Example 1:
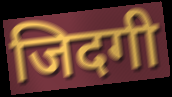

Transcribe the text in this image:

जिदगी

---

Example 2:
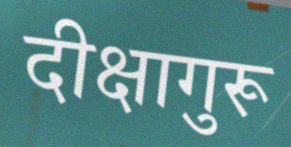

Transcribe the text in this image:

दीक्षागुरू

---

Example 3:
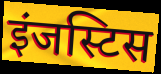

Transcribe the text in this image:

इंजस्टिस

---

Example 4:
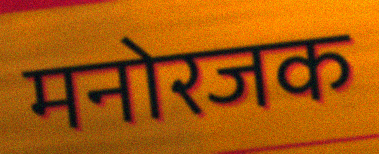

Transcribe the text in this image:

मनोरजक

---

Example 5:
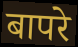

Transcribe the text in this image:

बापरे